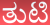
ತುಟಿ